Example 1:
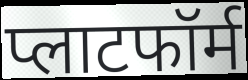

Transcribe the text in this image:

प्लाटफॉर्म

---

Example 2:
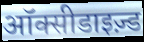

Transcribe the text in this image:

ऑक्सीडाइज़्ड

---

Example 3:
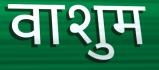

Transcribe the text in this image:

वाशुम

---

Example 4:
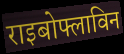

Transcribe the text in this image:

राइबोफ्लाविन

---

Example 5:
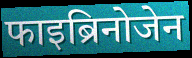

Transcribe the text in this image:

फाइब्रिनोजेन